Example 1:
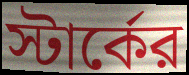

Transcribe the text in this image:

স্টার্কের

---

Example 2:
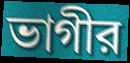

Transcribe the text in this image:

ভাগীর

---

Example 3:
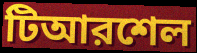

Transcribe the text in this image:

টিআরশেল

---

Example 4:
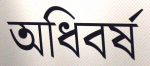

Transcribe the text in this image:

অধিবর্ষ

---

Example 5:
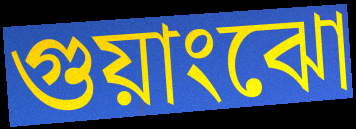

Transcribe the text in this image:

গুয়াংঝো